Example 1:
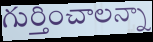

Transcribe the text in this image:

గుర్తించాలన్నా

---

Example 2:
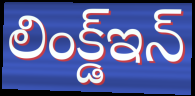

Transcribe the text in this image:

లింక్డ్ఇన్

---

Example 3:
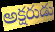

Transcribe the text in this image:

అక్షరుడు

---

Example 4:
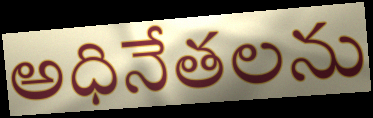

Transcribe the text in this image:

అధినేతలను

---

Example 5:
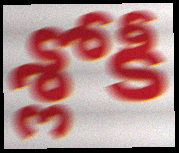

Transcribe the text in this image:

శ్లోకీ